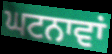
ਘਟਨਾਵਾਂ